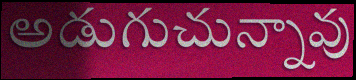
అడుగుచున్నావు